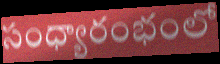
సంధ్యారంభంలో